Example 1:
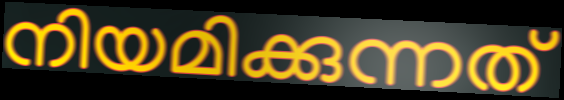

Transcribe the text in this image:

നിയമിക്കുന്നത്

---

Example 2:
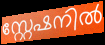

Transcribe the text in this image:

സ്റ്റേഷനിൽ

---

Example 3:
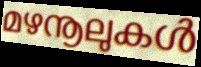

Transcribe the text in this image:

മഴനൂലുകൾ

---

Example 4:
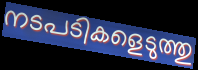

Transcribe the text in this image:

നടപടികളെടുത്തു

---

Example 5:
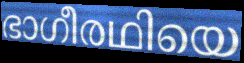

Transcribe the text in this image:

ഭാഗീരഥിയെ